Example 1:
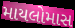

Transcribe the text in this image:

માયલોમાસ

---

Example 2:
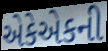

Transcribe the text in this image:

એકેએકની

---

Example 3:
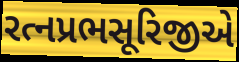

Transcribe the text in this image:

રત્નપ્રભસૂરિજીએ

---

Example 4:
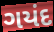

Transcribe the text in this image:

ગયંદ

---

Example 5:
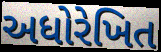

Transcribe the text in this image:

અધોરેખિત